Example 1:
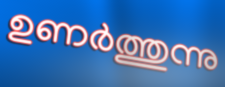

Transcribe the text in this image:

ഉണർത്തുന്നു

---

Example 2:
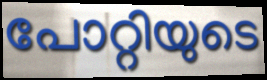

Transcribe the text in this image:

പോറ്റിയുടെ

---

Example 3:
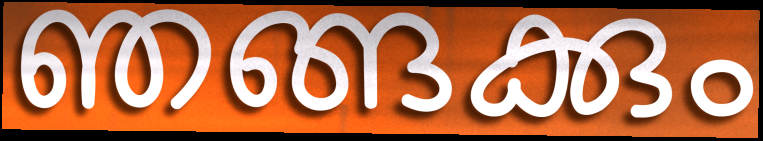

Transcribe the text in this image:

ഞങ്ങക്കും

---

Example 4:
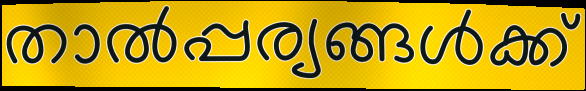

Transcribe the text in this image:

താൽപ്പര്യങ്ങൾക്ക്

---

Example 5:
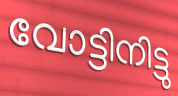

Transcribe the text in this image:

വോട്ടിനിട്ടു